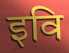
इवि